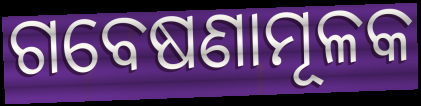
ଗବେଷଣାମୂଳକ